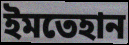
ইমতেহান